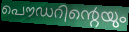
പൌഡറിന്റെയും